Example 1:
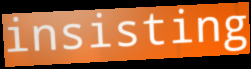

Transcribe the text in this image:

insisting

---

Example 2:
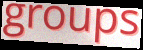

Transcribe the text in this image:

groups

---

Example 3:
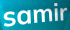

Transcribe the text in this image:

samir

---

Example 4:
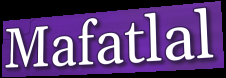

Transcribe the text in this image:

Mafatlal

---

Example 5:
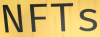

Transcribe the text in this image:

NFTs